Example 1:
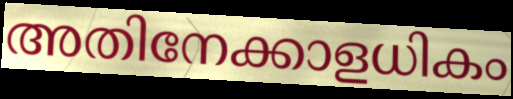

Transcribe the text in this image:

അതിനേക്കാളധികം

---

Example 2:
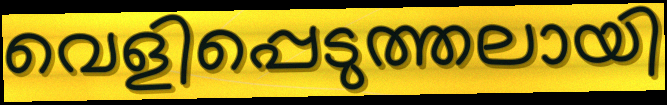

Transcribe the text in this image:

വെളിപ്പെടുത്തലായി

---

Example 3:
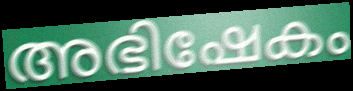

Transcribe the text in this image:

അഭിഷേകം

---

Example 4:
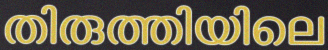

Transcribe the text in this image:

തിരുത്തിയിലെ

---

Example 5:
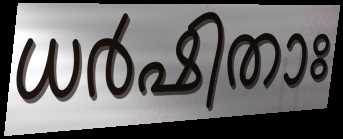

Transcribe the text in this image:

ധർഷിതാഃ